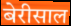
बेरीसाल